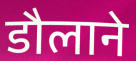
डौलाने